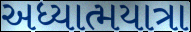
અધ્યાત્મયાત્રા